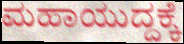
ಮಹಾಯುದ್ದಕ್ಕೆ